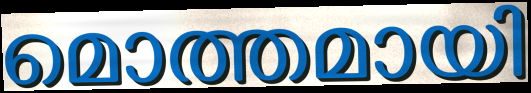
മൊത്തമായി